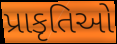
પ્રાકૃતિઓ